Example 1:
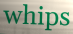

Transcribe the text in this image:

whips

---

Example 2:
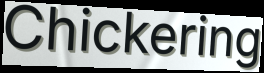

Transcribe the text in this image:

Chickering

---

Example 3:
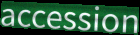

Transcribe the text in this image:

accession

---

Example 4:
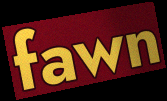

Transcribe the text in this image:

fawn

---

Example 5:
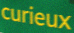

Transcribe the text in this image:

curieux